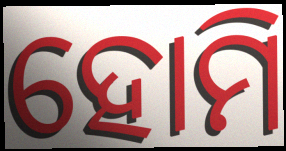
ହୋମି